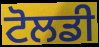
ਟੋਲਡੀ